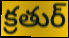
క్రతుర్